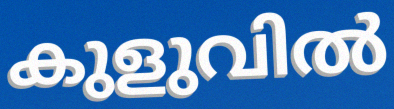
കുളുവിൽ